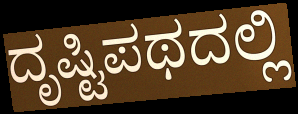
ದೃಷ್ಟಿಪಥದಲ್ಲಿ